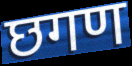
छगण